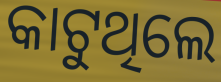
କାଟୁଥିଲେ